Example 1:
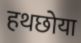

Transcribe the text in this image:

हथछोया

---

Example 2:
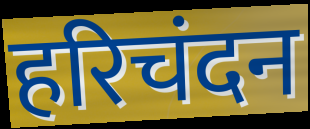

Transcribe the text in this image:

हरिचंदन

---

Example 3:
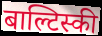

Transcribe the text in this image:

बाल्टिस्की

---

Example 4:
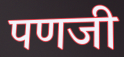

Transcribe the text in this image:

पणजी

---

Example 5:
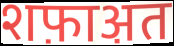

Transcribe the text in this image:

शफ़ाअ़त